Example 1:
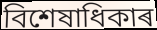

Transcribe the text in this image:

বিশেষাধিকাৰ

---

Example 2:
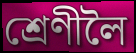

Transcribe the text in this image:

শ্ৰেণীলৈ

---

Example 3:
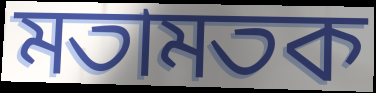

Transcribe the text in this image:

মতামতক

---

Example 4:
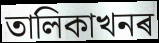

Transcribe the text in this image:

তালিকাখনৰ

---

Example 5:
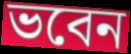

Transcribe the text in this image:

ভবেন